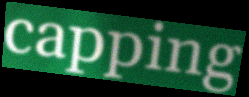
capping